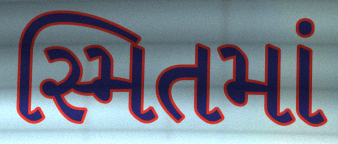
સ્મિતમાં